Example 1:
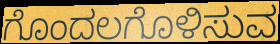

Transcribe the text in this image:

ಗೊಂದಲಗೊಳಿಸುವ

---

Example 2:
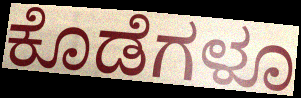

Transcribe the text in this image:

ಕೊಡೆಗಳೂ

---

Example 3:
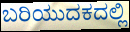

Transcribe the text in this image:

ಬರಿಯುದಕದಲ್ಲಿ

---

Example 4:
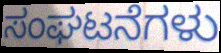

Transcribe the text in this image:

ಸಂಘಟನೆಗಳು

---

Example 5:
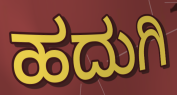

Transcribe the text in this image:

ಹದುಗಿ